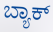
ಬ್ಯಾಕ್